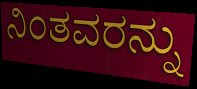
ನಿಂತವರನ್ನು